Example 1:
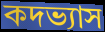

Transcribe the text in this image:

কদভ্যাস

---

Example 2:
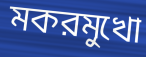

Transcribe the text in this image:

মকরমুখো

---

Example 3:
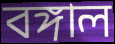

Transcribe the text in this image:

বঙ্গাল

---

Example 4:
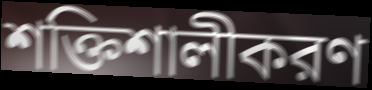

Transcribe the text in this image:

শক্তিশালীকরণ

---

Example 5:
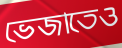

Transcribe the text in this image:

ভেজাতেও